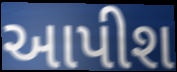
આપીશ